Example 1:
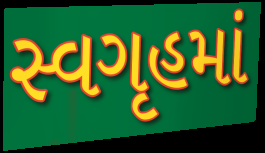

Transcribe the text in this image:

સ્વગૃહમાં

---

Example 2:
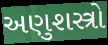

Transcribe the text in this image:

અણુશસ્ત્રો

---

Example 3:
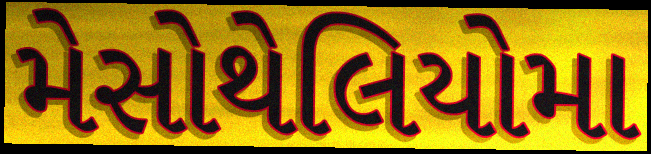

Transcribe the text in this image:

મેસોથેલિયોમા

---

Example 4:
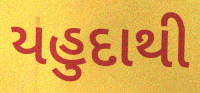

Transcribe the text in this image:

યહુદાથી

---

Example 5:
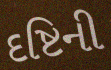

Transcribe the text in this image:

દષ્ટિની